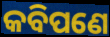
କବିପଣେ